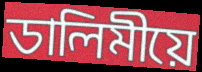
ডালিমীয়ে